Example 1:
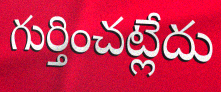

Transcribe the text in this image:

గుర్తించట్లేదు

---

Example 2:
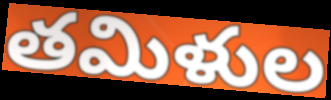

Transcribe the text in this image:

తమిళుల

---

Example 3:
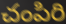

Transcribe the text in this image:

చంపిరి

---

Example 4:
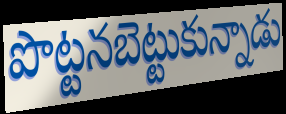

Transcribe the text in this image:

పొట్టనబెట్టుకున్నాడు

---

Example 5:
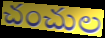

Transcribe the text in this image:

చంచుల